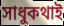
সাধুকথাই